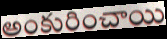
అంకురించాయి